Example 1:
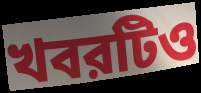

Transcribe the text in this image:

খবরটিও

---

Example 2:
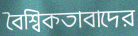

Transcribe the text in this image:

বৈশ্বিকতাবাদের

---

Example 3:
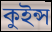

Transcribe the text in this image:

কুইন্স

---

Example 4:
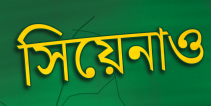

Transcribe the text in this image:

সিয়েনাও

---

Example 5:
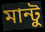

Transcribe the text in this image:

মান্টু